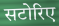
सटोरिए